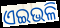
ଏଇଭଳି